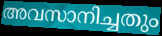
അവസാനിച്ചതും